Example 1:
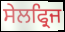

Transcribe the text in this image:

ਸੇਲਫ੍ਰਿਜ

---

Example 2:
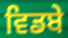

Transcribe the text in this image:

ਵਿਡਬੇ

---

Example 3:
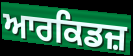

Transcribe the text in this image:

ਆਰਕਿਡਜ਼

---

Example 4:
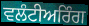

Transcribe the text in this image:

ਵਲੰਟੀਅਰਿੰਗ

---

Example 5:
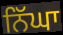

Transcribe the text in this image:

ਨਿੱਘਾ